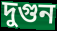
দুগুন